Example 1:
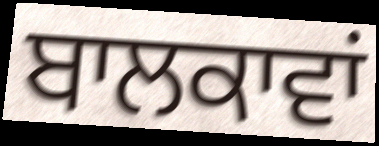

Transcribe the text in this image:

ਬਾਲਕਾਵਾਂ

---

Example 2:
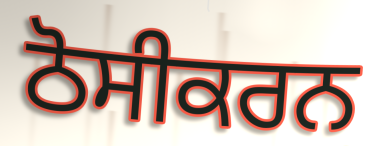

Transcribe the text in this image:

ਠੋਸੀਕਰਨ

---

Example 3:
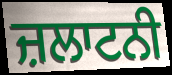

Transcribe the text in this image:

ਜ਼ਲਾਟਨੀ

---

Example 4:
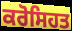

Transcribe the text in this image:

ਕਰੋਸਿਹਤ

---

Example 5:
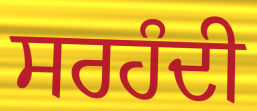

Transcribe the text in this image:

ਸਰਹੰਦੀ